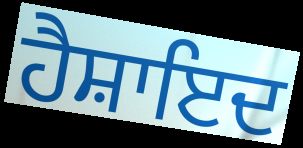
ਹੈਸ਼ਾਇਦ